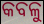
କବଳୁ